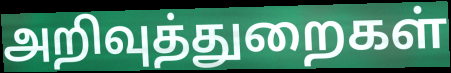
அறிவுத்துறைகள்